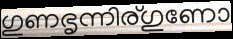
ഗുണഭൃന്നിര്ഗുണോ